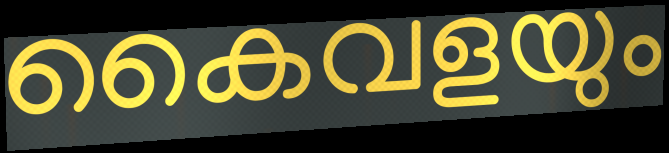
കൈവളയും